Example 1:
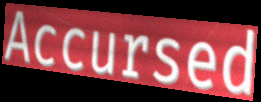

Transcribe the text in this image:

Accursed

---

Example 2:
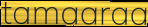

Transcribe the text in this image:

tamaaraa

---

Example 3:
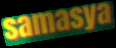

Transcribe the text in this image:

samasya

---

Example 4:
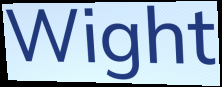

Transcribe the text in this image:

Wight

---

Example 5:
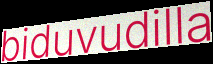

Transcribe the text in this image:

biduvudilla